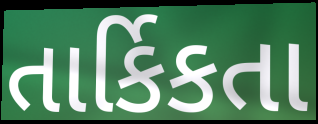
તાર્કિકતા